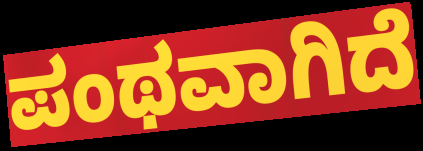
ಪಂಥವಾಗಿದೆ